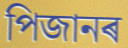
পিজানৰ